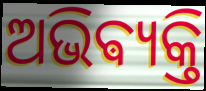
ଅଭିଵ୍ୟକ୍ତି